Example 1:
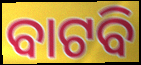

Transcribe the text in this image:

ବାଟବି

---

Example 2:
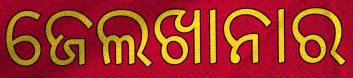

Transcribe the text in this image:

ଜେଲଖାନାର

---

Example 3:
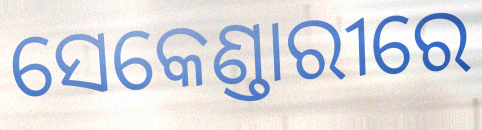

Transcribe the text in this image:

ସେକେଣ୍ଡାରୀରେ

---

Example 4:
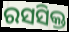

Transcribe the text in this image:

ରସସିକ୍ତ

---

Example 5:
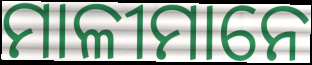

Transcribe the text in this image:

ମାଳୀମାନେ